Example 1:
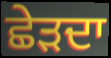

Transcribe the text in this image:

ਛੇੜਦਾ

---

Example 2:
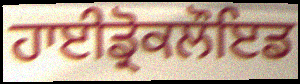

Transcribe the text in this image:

ਹਾਈਡ੍ਰੋਕਲੌਇਡ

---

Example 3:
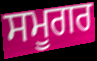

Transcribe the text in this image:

ਸਮੂਗਰ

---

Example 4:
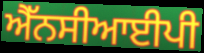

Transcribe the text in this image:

ਐੱਨਸੀਆਈਪੀ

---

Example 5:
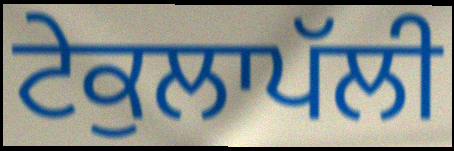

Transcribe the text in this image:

ਟੇਕੁਲਾਪੱਲੀ